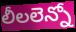
లీలలెన్నో